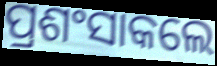
ପ୍ରଶଂସାକଲେ